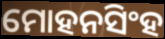
ମୋହନସିଂହ